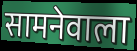
सामनेवाला